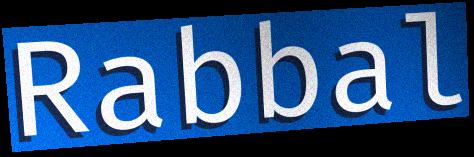
Rabbal